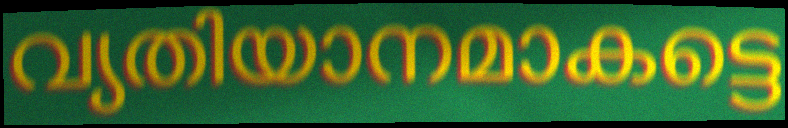
വ്യതിയാനമാകട്ടെ